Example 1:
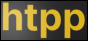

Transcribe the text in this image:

htpp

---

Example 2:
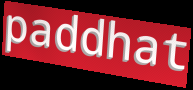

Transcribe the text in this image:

paddhat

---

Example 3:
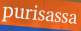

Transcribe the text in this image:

purisassa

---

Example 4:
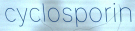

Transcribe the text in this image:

cyclosporin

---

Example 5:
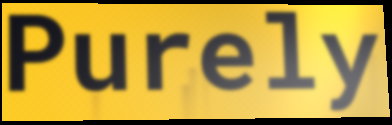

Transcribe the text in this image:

Purely